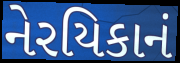
નેરયિકાનં